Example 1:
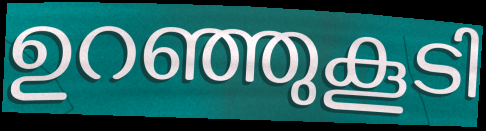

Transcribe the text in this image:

ഉറഞ്ഞുകൂടി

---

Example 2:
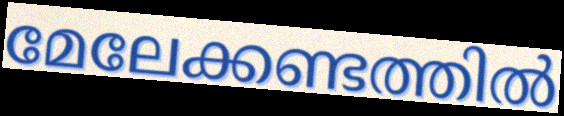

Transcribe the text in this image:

മേലേക്കണ്ടത്തിൽ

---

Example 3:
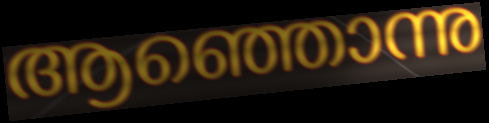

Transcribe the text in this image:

ആഞ്ഞൊന്നു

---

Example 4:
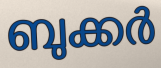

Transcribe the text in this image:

ബുക്കർ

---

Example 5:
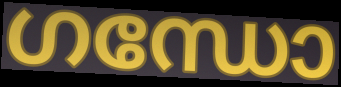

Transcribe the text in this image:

ഗന്ധോ